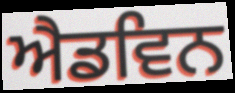
ਐਡਵਿਨ